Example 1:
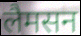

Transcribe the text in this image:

लैमसन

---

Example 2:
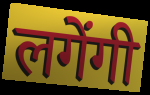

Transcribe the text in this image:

लगेंगी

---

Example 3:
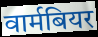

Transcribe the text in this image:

वार्मबियर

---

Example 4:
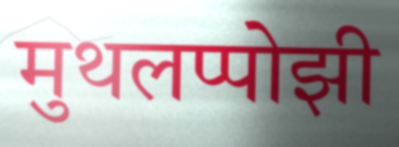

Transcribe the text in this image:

मुथलप्पोझी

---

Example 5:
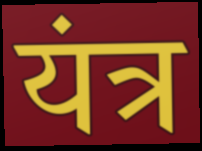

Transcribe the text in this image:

यंत्र